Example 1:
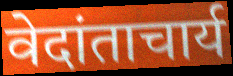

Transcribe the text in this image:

वेदांताचार्य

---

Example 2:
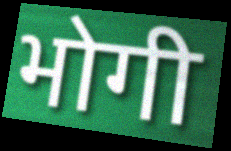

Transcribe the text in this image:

भोगी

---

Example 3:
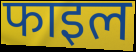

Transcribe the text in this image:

फाइल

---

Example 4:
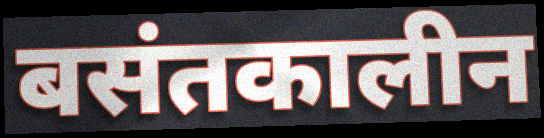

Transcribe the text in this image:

बसंतकालीन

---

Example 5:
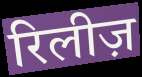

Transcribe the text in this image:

रिलीज़